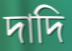
দাদি